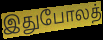
இதுபோலத்